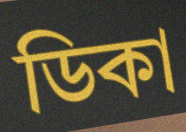
ডিকা